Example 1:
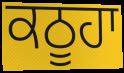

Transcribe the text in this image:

ਕਠੂਹਾ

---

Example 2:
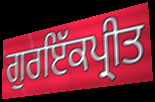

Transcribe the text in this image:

ਗੁਰਇੱਕਪ੍ਰੀਤ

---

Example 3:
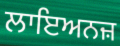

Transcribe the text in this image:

ਲਾਇਅਨਜ਼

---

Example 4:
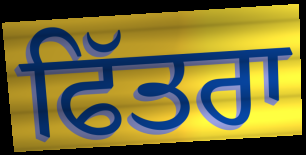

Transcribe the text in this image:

ਫਿੱਤਰਾ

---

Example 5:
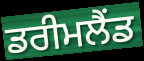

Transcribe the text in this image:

ਡਰੀਮਲੈਂਡ